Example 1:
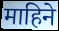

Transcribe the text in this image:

माहिने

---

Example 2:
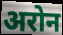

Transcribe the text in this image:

अरोन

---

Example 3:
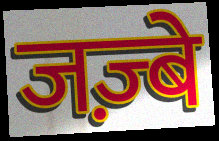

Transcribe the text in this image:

जज़्बे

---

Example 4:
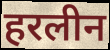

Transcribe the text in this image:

हरलीन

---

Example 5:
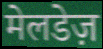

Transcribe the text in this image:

मेलडेज़